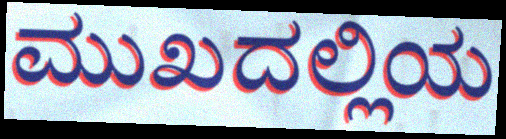
ಮುಖದಲ್ಲಿಯ